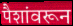
पैशांवरून